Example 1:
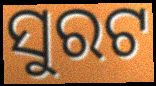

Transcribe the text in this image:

ସୁରଟ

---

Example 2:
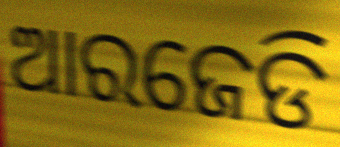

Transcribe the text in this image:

ଆରଜେଡି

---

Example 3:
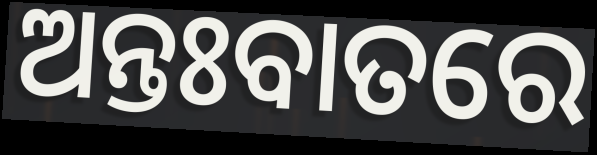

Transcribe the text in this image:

ଅନ୍ତଃବାତରେ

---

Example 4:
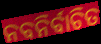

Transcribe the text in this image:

ନବନିର୍ବାଚିତ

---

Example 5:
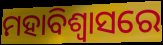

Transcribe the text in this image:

ମହାବିଶ୍ୱାସରେ